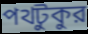
পথটুকুর